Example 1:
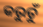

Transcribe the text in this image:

କରୁଚୁଁ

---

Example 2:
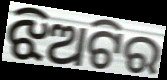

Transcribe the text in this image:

ଝିଅଟିର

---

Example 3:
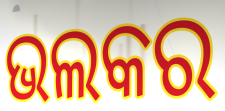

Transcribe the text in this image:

ଭଲକର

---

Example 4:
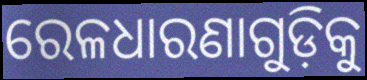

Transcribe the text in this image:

ରେଳଧାରଣାଗୁଡ଼ିକୁ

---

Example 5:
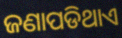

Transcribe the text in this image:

ଜଣାପଡିଥାଏ